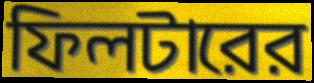
ফিলটারের